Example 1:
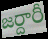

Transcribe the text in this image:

జర్దారీ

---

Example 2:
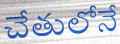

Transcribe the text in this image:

చేతులోనే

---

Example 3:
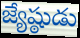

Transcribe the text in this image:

జ్యేష్ఠుడు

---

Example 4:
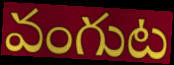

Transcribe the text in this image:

వంగుట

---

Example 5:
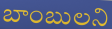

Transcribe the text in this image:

బాంబులని